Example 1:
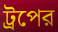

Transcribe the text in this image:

ট্রপের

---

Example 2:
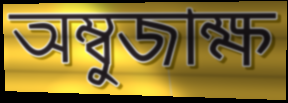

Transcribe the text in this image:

অম্বুজাক্ষ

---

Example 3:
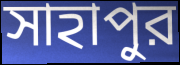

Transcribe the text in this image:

সাহাপুর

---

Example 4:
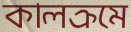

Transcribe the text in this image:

কালক্রমে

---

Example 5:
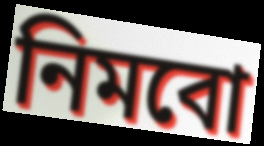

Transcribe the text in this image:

নিমবো